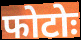
फोटोः